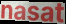
nasat